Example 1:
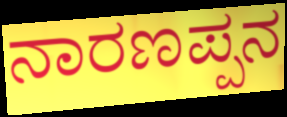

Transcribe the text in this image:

ನಾರಣಪ್ಪನ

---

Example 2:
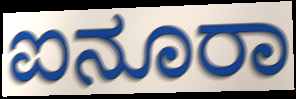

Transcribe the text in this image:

ಐನೂರಾ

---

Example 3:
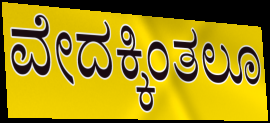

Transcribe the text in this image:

ವೇದಕ್ಕಿಂತಲೂ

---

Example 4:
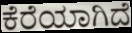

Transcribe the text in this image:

ಕೆರೆಯಾಗಿದೆ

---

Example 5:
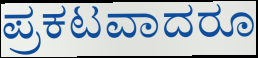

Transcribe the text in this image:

ಪ್ರಕಟವಾದರೂ